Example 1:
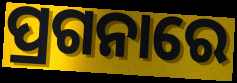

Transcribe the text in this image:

ପ୍ରଗନାରେ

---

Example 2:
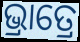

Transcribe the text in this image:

ଭ୍ରାତ୍ରେ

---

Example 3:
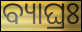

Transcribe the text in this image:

ବ୍ୟାଘ୍ରଃ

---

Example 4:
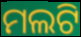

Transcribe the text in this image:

ମଲଟି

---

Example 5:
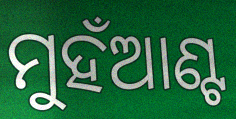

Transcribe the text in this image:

ମୁହଁଆଣ୍ଟ